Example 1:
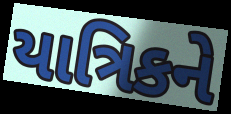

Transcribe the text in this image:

યાત્રિકને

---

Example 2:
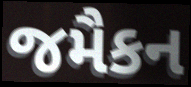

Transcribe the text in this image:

જમૈકન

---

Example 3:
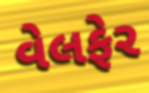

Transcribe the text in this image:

વેલફેર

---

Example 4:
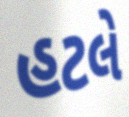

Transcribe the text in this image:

હટલે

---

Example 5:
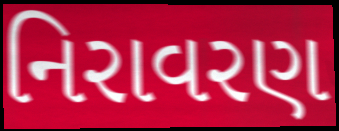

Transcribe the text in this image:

નિરાવરણ